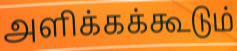
அளிக்கக்கூடும்